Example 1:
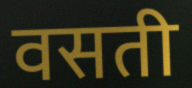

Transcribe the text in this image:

वसती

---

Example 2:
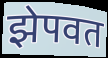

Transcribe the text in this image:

झेपवत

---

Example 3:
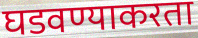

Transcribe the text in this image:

घडवण्याकरता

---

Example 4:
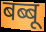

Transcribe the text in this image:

बब्बू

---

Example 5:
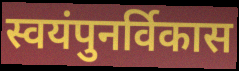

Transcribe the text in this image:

स्वयंपुनर्विकास